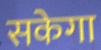
सकेगा